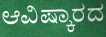
ಆವಿಷ್ಕಾರದ